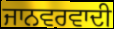
ਜਾਨਵਰਵਾਦੀ